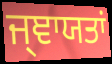
ਜ੍ਞਾਯਤਾਂ